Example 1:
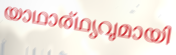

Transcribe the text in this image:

യാഥാര്ഥ്യവുമായി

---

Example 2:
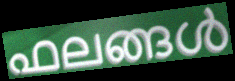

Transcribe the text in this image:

ഫലങ്ങൾ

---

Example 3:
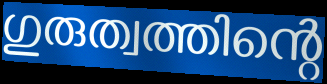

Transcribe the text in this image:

ഗുരുത്വത്തിന്റെ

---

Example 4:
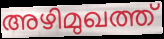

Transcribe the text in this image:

അഴിമുഖത്ത്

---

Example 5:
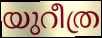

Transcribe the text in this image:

യുറീത്ര